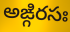
అఙ్గిరసః